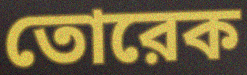
তোরেক